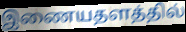
இணையதளத்தில்